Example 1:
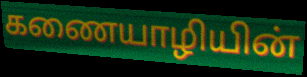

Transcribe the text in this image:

கணையாழியின்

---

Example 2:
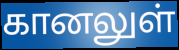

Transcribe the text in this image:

கானலுள்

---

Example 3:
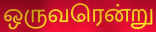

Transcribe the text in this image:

ஒருவரென்று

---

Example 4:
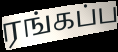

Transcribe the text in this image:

ரங்கப்ப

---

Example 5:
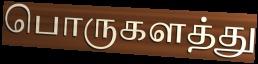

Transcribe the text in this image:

பொருகளத்து